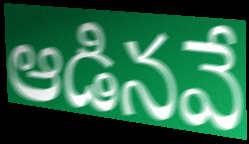
ఆడినవే